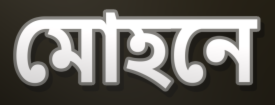
মোহনে